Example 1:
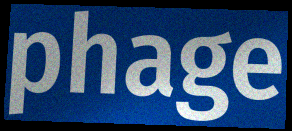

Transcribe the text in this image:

phage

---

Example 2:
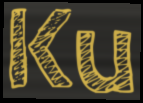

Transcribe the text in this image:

Ku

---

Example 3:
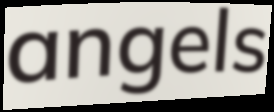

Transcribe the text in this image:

angels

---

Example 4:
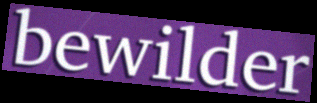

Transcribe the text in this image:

bewilder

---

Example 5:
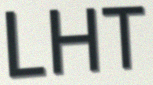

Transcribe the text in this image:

LHT